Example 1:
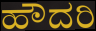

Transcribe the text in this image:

ಹೌದರಿ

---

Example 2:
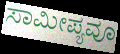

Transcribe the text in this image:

ಸಾಮೀಪ್ಯವೂ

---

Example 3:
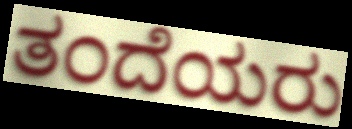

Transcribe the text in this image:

ತಂದೆಯರು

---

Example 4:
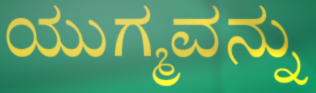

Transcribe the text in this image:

ಯುಗ್ಮವನ್ನು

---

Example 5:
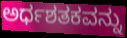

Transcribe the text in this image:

ಅರ್ಧಶತಕವನ್ನು